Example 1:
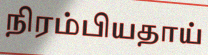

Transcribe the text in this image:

நிரம்பியதாய்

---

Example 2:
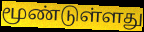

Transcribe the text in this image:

மூண்டுள்ளது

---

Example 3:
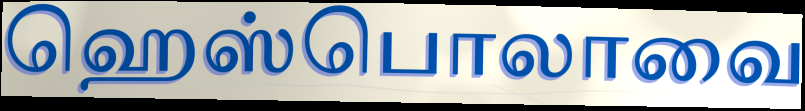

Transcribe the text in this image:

ஹெஸ்பொலாவை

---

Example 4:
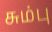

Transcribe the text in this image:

சும்பு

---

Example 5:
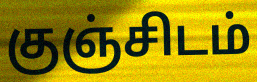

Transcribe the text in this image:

குஞ்சிடம்